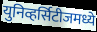
युनिव्हर्सिटीजमध्ये